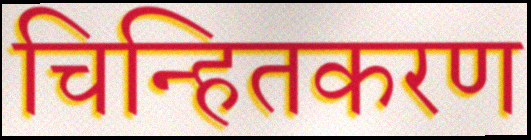
चिन्हितकरण